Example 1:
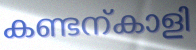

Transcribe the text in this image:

കണ്ടന്കാളി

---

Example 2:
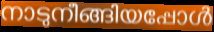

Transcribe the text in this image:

നാടുനീങ്ങിയപ്പോൾ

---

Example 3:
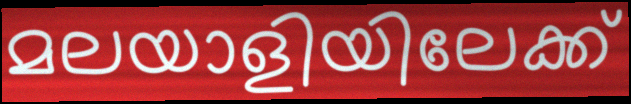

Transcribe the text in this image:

മലയാളിയിലേക്ക്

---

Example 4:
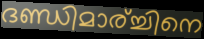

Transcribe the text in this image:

ദണ്ഡിമാര്ച്ചിനെ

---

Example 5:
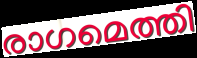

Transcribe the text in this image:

രാഗമെത്തി